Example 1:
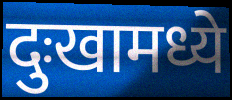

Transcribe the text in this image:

दुःखामध्ये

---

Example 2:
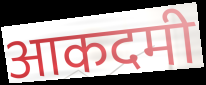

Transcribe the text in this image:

आकदमी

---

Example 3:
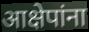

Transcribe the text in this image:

आक्षेपांना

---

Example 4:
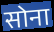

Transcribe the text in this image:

सोना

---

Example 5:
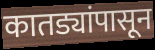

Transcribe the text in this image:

कातड्यांपासून